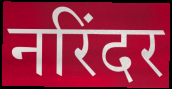
नरिंदर